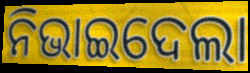
ନିଭାଇଦେଲା